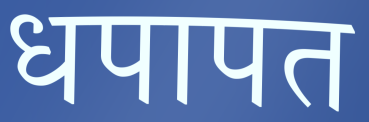
धपापत